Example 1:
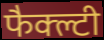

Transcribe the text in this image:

फैक्ल्टी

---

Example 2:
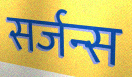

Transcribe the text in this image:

सर्जन्स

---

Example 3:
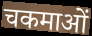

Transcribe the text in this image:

चकमाओं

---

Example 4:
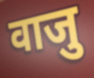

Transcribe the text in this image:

वाजु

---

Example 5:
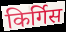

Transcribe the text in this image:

किर्गिस